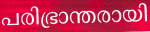
പരിഭ്രാന്തരായി